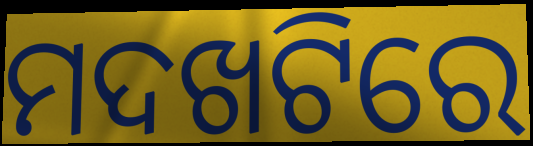
ମଦଖଟିରେ